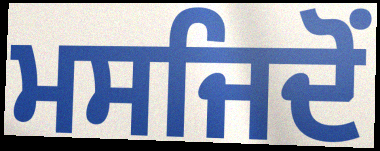
ਮਸਜਿਦੋਂ